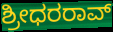
ಶ್ರೀಧರರಾವ್